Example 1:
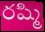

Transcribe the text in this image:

రష్మి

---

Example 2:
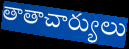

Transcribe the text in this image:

తాతాచార్యులు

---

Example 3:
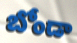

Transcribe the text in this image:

బోండా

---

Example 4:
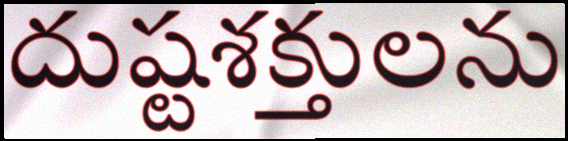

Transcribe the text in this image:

దుష్టశక్తులను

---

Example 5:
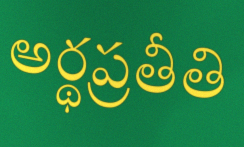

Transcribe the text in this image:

అర్థప్రతీతి